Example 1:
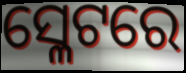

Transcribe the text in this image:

ସ୍ଳେଟରେ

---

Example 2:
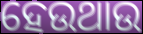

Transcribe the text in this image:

ହେଉଥାଉ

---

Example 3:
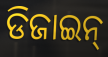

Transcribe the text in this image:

ଡିଜାଇନ୍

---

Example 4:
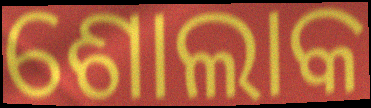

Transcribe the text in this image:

ଶୋଲାକ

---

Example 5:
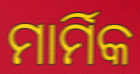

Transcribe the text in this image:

ମାର୍ମିକ